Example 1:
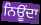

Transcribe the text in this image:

ਨਿਊਂਦਾ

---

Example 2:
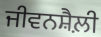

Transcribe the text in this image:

ਜੀਵਨਸ਼ੈਲ਼ੀ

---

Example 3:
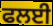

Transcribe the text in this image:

ਫਲਈ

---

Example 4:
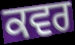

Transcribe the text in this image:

ਕਵਰ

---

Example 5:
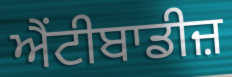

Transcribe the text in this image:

ਐਂਟੀਬਾਡੀਜ਼